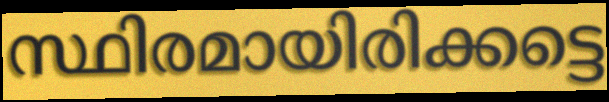
സ്ഥിരമായിരിക്കട്ടെ